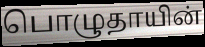
பொழுதாயின்